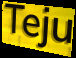
Teju